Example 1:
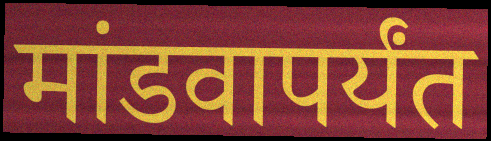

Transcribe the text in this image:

मांडवापर्यंत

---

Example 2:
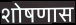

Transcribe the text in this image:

शोषणास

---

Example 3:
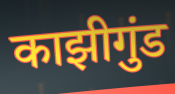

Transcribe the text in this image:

काझीगुंड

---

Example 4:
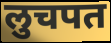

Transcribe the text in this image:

लुचपत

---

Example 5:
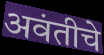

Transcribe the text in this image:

अवंतीचे